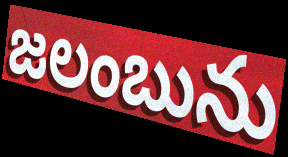
జలంబును